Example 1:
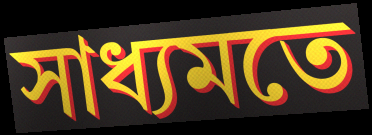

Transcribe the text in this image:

সাধ্যমতে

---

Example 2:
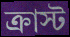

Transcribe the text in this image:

ক্রাস্ট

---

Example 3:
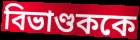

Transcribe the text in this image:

বিভাণ্ডককে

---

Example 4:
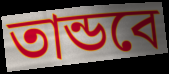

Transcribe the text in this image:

তান্ডবে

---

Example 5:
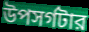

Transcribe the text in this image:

উপসর্গটার